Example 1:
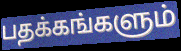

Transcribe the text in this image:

பதக்கங்களும்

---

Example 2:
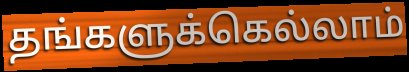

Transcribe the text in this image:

தங்களுக்கெல்லாம்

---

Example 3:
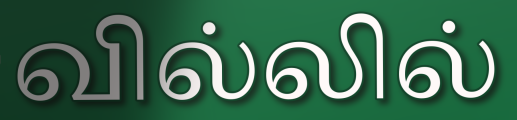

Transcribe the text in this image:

வில்லில்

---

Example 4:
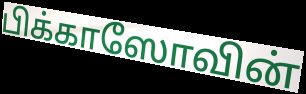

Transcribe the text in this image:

பிக்காஸோவின்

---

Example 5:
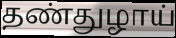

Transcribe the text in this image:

தண்துழாய்